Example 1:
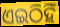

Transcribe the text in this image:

ଏଇଠିହିଁ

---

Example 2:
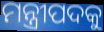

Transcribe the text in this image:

ମନ୍ତ୍ରୀପଦକୁ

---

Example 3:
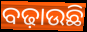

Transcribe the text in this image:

ବଢ଼ାଉଛି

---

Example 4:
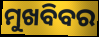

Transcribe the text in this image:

ମୁଖବିବର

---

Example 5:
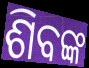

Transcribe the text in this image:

ଶିବଙ୍କ